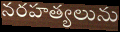
నరహత్యలును